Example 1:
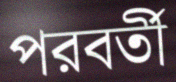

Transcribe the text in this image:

পরবর্তী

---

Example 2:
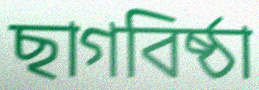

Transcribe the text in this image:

ছাগবিষ্ঠা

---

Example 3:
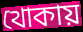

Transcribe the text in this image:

থোকায়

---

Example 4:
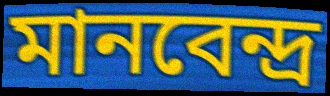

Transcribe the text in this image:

মানবেন্দ্র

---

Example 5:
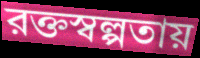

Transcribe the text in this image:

রক্তস্বল্পতায়